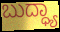
ಬುದ್ಧ್ಯಾ